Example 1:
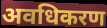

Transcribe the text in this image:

अवधिकरण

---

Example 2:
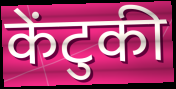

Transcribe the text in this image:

केंटुकी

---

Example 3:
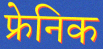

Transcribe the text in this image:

फ्रेनिक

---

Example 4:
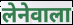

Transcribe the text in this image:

लेनेवाला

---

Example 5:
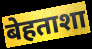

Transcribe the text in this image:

बेहताशा